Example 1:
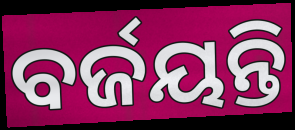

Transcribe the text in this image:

ବର୍ଜୟନ୍ତି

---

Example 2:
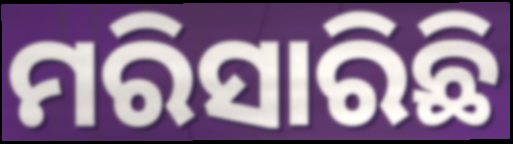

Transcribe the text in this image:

ମରିସାରିଛି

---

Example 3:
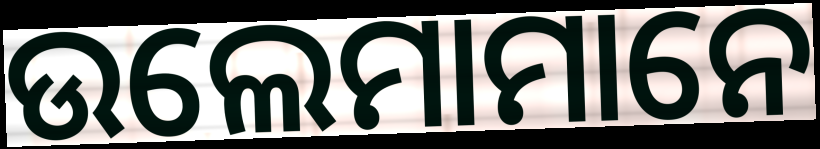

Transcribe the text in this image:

ଉଲେମାମାନେ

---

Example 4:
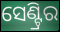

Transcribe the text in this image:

ସେଣ୍ଟ୍ରିର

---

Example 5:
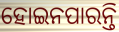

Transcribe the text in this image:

ହୋଇନପାରନ୍ତି